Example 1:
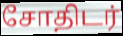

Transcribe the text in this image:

சோதிடர்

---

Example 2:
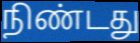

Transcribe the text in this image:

நிண்டது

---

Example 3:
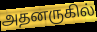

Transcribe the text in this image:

அதனருகில்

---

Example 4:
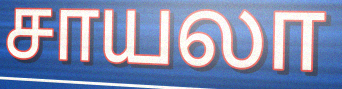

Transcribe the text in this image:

சாயலா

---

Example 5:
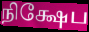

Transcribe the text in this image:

நிக்ஷேப